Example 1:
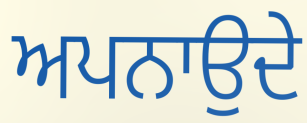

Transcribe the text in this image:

ਅਪਨਾਉਦੇ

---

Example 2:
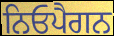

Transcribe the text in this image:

ਨਿਓਪੈਗਨ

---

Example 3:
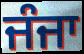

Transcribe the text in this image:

ਜੰਜਾ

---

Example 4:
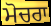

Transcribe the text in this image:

ਮੋਚਰਾ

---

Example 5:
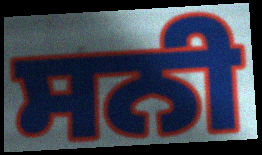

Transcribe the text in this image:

ਸਨੀ